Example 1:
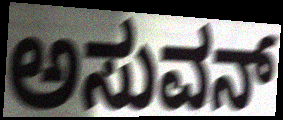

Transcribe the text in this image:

ಅಸುವನ್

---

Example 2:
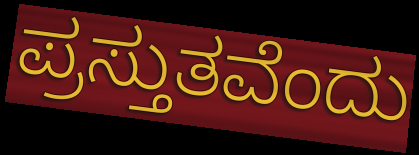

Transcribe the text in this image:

ಪ್ರಸ್ತುತವೆಂದು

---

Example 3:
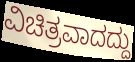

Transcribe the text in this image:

ವಿಚಿತ್ರವಾದದ್ದು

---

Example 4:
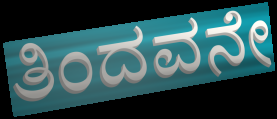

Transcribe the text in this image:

ತಿಂದವನೇ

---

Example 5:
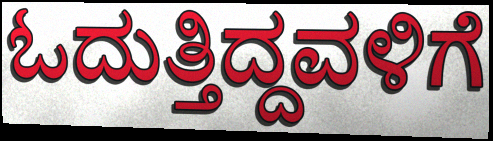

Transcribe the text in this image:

ಓದುತ್ತಿದ್ದವಳಿಗೆ